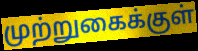
முற்றுகைக்குள்